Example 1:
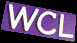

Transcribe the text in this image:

WCL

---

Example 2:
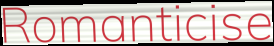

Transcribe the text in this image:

Romanticise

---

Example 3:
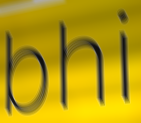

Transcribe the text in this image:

bhi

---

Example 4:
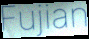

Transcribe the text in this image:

Fujian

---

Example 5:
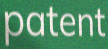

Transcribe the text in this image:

patent